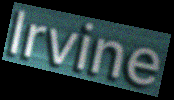
Irvine